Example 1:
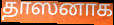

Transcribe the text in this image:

தாஸனாக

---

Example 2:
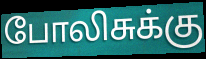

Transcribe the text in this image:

போலிசுக்கு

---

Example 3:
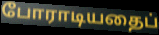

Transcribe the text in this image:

போராடியதைப்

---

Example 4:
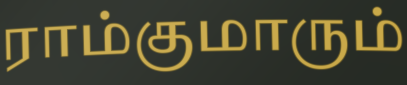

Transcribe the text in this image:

ராம்குமாரும்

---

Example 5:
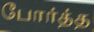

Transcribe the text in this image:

போர்த்த